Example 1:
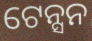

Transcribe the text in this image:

ଟେନ୍ସନ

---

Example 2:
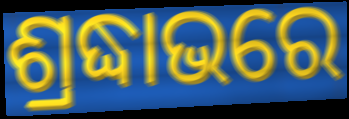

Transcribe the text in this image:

ଶ୍ରଦ୍ଧାଭରେ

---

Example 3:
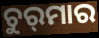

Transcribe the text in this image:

ଚୁର୍‍ମାର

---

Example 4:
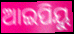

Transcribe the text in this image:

ଆଇପିୟୁ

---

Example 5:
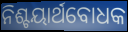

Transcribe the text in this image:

ନିଶ୍ଚୟାର୍ଥବୋଧକ